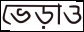
ভেড়াও